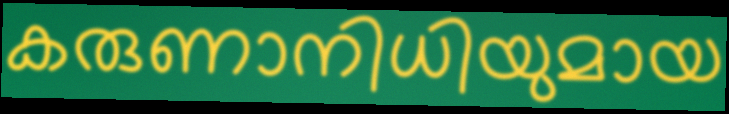
കരുണാനിധിയുമായ